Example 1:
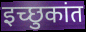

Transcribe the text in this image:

इच्छुकांत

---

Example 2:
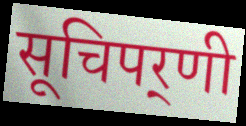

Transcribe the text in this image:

सूचिपर्णी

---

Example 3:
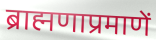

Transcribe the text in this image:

ब्राह्मणाप्रमाणें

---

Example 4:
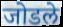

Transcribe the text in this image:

जोडले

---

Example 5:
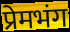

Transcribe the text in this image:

प्रेमभंग